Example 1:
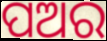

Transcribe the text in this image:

ପଅର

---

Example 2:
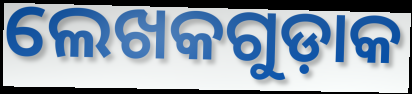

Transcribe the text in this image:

ଲେଖକଗୁଡ଼ାକ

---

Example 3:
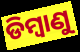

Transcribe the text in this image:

ଡିମ୍ବାଣୁ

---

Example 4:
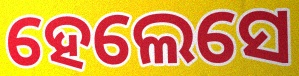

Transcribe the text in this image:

ହେଲେସେ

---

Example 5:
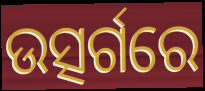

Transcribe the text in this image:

ଉତ୍ସର୍ଗରେ